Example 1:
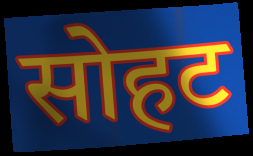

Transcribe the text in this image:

सोहट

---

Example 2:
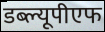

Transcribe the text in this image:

डब्ल्यूपीएफ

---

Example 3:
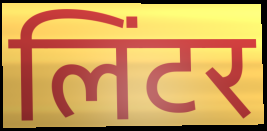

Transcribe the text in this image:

लिंटर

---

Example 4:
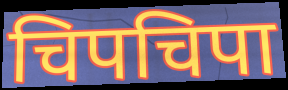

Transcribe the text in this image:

चिपचिपा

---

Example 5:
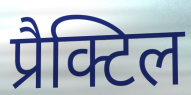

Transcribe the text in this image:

प्रैक्टिल